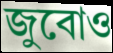
জুবোও